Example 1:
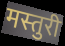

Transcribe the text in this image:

मस्तुरी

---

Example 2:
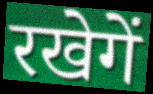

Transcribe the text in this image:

रखेगें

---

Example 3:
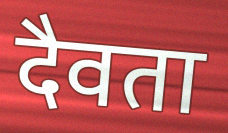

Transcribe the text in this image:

दैवता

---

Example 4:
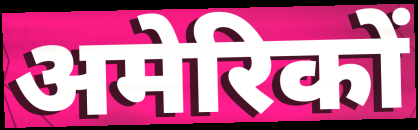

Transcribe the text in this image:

अमेरिकों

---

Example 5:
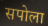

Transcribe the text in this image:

सपोला